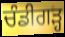
ਚੰਡੀਗੜ੍ਹ